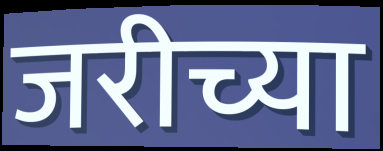
जरीच्या